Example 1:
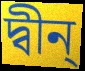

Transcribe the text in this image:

দ্বীন্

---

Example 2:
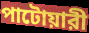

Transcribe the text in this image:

পাটোয়ারী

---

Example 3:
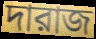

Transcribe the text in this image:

দারাজ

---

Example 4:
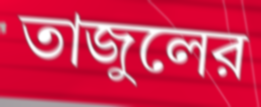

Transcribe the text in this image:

তাজুলের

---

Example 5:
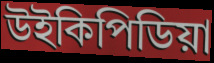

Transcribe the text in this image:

উইকিপিডিয়া